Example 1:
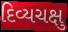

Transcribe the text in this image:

દિવ્યચક્ષુ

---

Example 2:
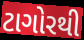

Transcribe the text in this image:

ટાગોરથી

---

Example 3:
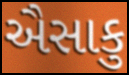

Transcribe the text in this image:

ઐસાકુ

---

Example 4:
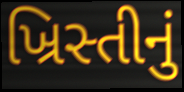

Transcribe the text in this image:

ખ્રિસ્તીનું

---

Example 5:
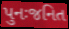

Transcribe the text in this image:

પુનઃજનિત